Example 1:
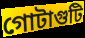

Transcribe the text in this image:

গোটাগুটি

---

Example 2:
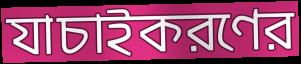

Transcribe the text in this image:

যাচাইকরণের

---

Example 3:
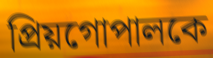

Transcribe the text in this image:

প্রিয়গোপালকে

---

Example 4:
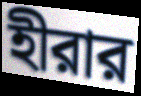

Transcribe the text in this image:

হীরার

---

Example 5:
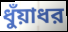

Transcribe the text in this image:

ধুঁয়াধর